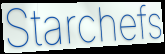
Starchefs